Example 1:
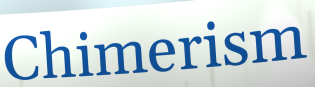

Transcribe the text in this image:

Chimerism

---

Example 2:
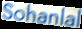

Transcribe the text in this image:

Sohanlal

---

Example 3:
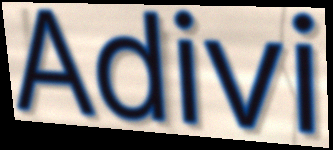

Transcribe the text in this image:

Adivi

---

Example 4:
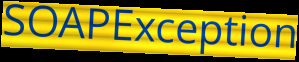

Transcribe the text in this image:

SOAPException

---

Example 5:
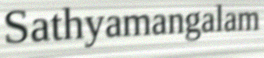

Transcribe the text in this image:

Sathyamangalam